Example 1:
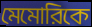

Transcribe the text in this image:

মেমোরিকে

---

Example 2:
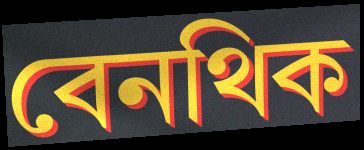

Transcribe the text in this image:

বেনথিক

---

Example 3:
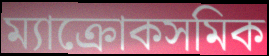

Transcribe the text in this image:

ম্যাক্রোকসমিক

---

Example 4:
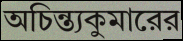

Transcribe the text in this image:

অচিন্ত্যকুমারের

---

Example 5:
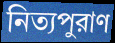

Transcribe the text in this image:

নিত্যপুরাণ